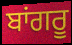
ਬਾਂਗਰੂ